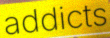
addicts